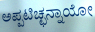
ಅಪ್ಪಟಿಚ್ಛನ್ನಾಯೋ